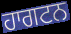
ਹਾਗਟਨ